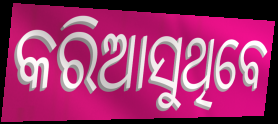
କରିଆସୁଥିବେ